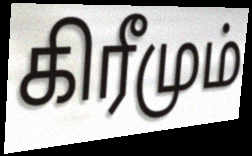
கிரீமும்